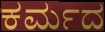
ಕರ್ಮದ